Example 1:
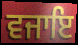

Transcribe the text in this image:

ਵਜਾਇ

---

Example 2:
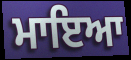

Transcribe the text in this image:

ਮਾਇਆ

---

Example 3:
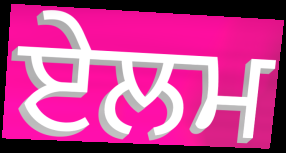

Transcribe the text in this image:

ਏਲਮ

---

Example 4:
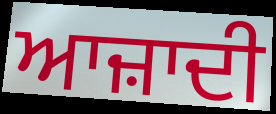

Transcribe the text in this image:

ਆਜ਼ਾਦੀ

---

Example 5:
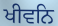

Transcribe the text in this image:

ਖੀਵਨਿ